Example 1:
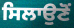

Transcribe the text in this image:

ਸਿਲਾਉਣੋਂ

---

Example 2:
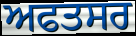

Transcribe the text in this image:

ਅਫਤਸਰ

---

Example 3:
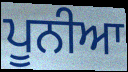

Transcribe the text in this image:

ਪੂਨੀਆ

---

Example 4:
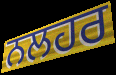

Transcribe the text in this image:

ਨਲਹਰ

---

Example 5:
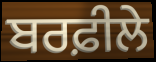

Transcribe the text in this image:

ਬਰਫ਼ੀਲੇ